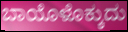
ಬಾಯೊಳೊಕ್ಕುದು